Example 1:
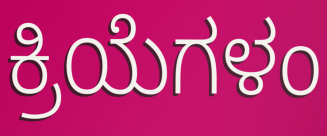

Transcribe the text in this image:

ಕ್ರಿಯೆಗಳಂ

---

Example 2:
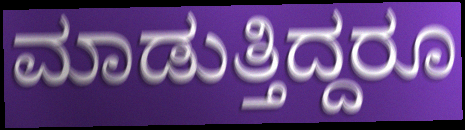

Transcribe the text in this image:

ಮಾಡುತ್ತಿದ್ದರೂ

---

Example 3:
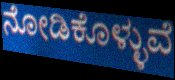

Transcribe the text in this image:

ನೋಡಿಕೊಳ್ಳುವೆ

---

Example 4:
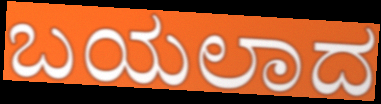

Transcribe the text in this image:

ಬಯಲಾದ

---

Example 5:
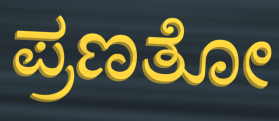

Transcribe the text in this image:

ಪ್ರಣತೋ